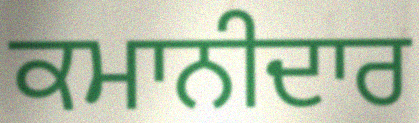
ਕਮਾਨੀਦਾਰ